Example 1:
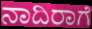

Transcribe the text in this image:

ನಾದಿರಾಗೆ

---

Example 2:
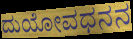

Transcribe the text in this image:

ದುಯೋವಧನನ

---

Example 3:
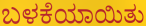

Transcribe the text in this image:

ಬಳಕೆಯಾಯಿತು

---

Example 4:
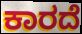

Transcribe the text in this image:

ಕಾರದೆ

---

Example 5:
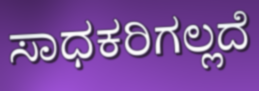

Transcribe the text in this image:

ಸಾಧಕರಿಗಲ್ಲದೆ